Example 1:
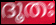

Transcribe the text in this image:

ദൂതഃ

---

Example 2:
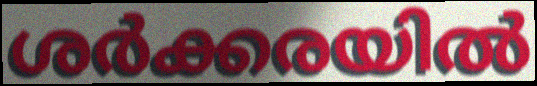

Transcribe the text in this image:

ശർക്കരയിൽ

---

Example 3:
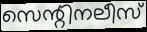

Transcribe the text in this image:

സെന്റിനലീസ്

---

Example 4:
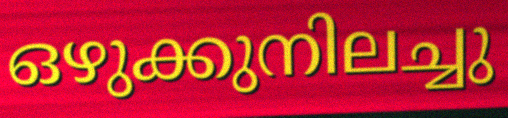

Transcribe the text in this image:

ഒഴുക്കുനിലച്ചു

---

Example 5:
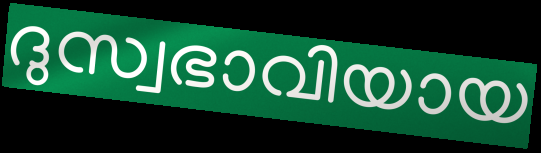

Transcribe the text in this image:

ദുസ്വഭാവിയായ